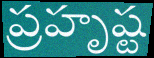
ప్రహృష్ట